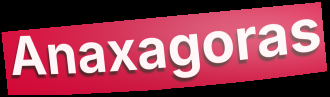
Anaxagoras